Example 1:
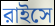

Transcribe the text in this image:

রাইসে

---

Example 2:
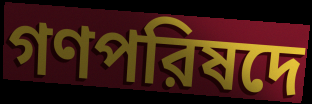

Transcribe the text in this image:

গণপরিষদে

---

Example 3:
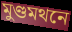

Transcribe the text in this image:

মুণ্ডমথনে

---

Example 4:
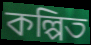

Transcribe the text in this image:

কল্পিত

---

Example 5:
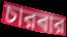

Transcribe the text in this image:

চারবার